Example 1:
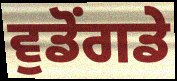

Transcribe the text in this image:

ਵੁਡੋਂਗਡੇ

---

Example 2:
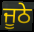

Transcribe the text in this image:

ਜੂਠੇ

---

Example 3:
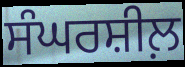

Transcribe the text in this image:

ਸੰਘਰਸ਼ੀਲ਼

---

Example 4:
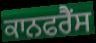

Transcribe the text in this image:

ਕਾਨਫਰੈਂਸ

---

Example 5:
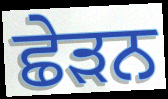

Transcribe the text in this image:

ਛੇੜਨ